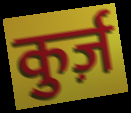
कुर्ज़